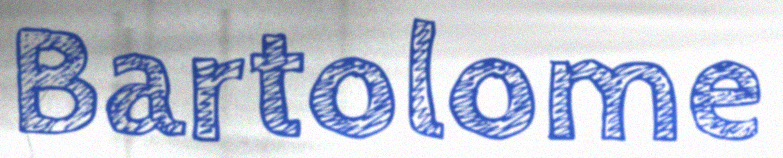
Bartolome